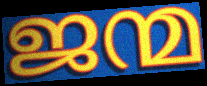
ജന്മ